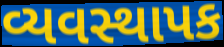
વ્યવસ્થાપક